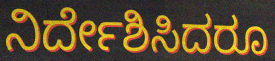
ನಿರ್ದೇಶಿಸಿದರೂ